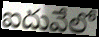
ఐదువేలో